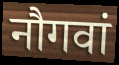
नौगवां